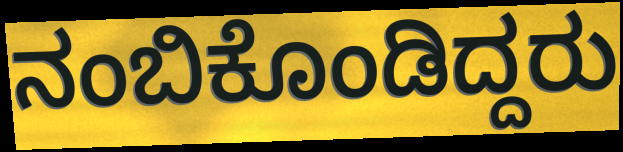
ನಂಬಿಕೊಂಡಿದ್ದರು